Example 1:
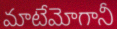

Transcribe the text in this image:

మాటేమోగానీ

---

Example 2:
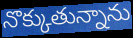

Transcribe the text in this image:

నొక్కుతున్నాను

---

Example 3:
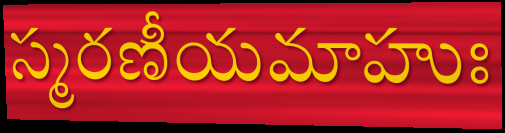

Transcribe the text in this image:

స్మరణీయమాహుః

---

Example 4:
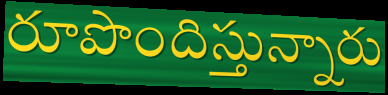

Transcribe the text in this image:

రూపొందిస్తున్నారు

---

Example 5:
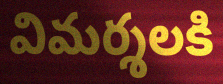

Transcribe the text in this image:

విమర్శలకి